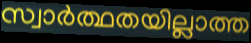
സ്വാർത്ഥതയില്ലാത്ത